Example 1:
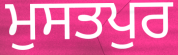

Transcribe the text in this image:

ਮੁਸਤਪੁਰ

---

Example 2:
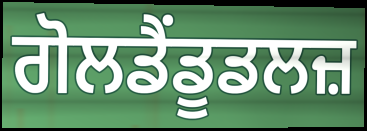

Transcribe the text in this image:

ਗੋਲਡੈਂਡੂਡਲਜ਼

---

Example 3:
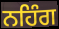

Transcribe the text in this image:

ਨਹਿੰਗ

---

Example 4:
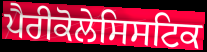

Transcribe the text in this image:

ਪੈਰੀਕੋਲੇਸਿਸਟਿਕ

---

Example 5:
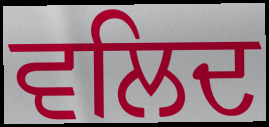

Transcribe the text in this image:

ਵਲਿਦ